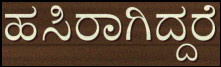
ಹಸಿರಾಗಿದ್ದರೆ